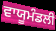
ਵਾਯੂਮੰਡਲੀ